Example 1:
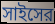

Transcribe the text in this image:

সাইসের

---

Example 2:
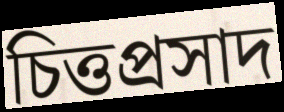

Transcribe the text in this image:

চিত্তপ্রসাদ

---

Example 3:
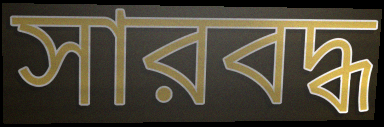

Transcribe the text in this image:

সারবদ্ধ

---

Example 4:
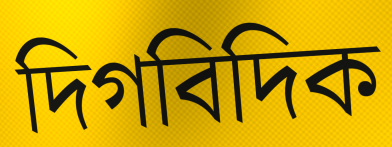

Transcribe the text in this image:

দিগবিদিক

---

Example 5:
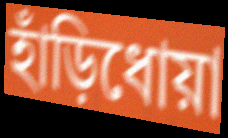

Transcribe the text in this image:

হাঁড়িধোয়া